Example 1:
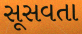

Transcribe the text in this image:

સૂસવતા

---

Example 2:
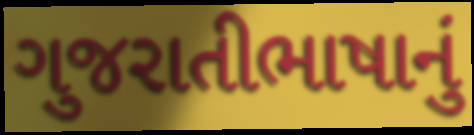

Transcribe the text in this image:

ગુજરાતીભાષાનું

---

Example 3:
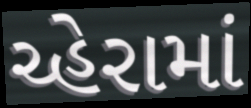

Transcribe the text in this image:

ચ્હેરામાં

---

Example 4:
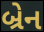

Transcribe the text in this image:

બ્રેન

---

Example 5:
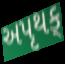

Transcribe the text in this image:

અપૃથક્